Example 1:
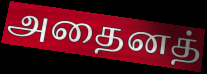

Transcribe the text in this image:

அதைனத்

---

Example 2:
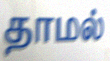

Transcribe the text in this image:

தாமல்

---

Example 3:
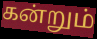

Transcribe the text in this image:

கன்றும்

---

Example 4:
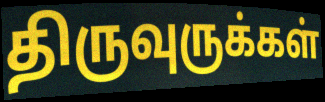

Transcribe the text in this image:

திருவுருக்கள்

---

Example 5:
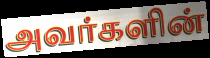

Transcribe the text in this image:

அவர்களின்